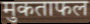
मुकताफल